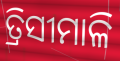
ତ୍ରିସୀମାଳି